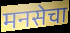
मनसेचा